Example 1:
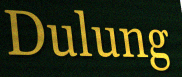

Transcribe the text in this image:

Dulung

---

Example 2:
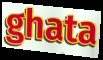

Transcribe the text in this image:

ghata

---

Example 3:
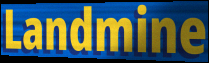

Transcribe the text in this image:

Landmine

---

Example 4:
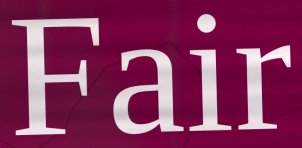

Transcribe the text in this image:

Fair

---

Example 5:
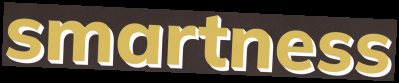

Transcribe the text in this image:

smartness